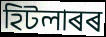
হিটলাৰৰ